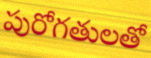
పురోగతులతో